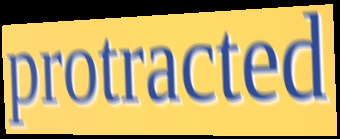
protracted